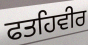
ਫਤਹਿਵੀਰ